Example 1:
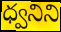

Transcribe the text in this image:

ధ్వనిని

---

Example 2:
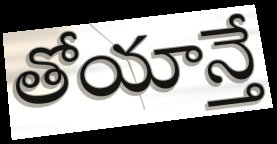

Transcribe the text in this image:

తోయాన్తే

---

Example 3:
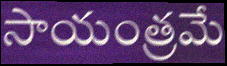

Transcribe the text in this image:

సాయంత్రమే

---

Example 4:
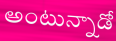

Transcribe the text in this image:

అంటున్నాడో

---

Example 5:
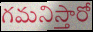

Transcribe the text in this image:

గమనిస్తారో